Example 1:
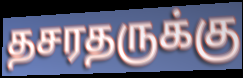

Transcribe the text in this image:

தசரதருக்கு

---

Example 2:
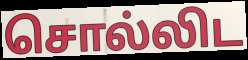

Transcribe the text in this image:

சொல்லிட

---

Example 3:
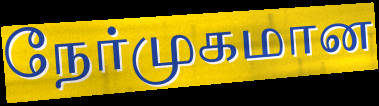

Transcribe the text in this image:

நேர்முகமான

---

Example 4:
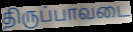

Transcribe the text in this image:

திருப்பாவடை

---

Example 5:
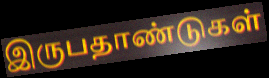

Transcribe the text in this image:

இருபதாண்டுகள்